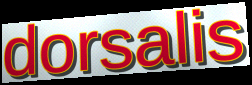
dorsalis